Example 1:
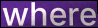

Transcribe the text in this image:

where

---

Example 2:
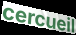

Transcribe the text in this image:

cercueil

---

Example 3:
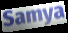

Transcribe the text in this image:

Samya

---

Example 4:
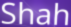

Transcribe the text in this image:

Shah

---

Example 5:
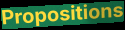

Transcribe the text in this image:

Propositions